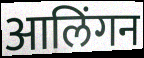
आलिंगन